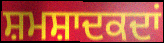
ਸ਼ਮਸ਼ਾਦਕਦਾਂ